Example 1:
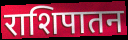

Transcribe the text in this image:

राशिपातन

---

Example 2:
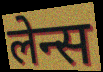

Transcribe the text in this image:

लेन्स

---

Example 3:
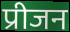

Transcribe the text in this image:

प्रीजन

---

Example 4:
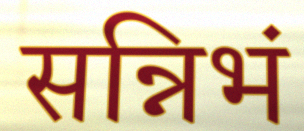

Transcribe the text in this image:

सन्निभं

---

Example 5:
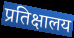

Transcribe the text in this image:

प्रतिक्षालय